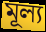
মূল্য